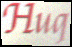
Huq